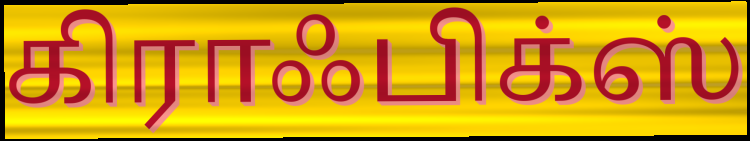
கிராஃபிக்ஸ்